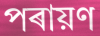
পৰায়ণ